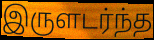
இருளடர்ந்த